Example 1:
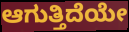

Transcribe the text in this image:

ಆಗುತ್ತಿದೆಯೇ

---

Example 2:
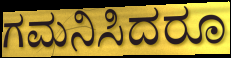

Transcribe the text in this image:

ಗಮನಿಸಿದರೂ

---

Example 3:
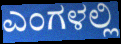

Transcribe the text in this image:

ಎಂಗಳಲ್ಲಿ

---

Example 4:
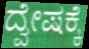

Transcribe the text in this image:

ದ್ವೇಷಕ್ಕೆ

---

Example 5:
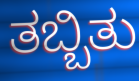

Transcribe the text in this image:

ತಬ್ಬಿತು